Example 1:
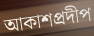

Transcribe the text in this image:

আকাশপ্রদীপ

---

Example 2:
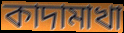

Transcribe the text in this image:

কাদামাখা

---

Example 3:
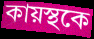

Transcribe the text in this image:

কায়স্থকে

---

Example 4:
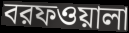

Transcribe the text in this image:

বরফওয়ালা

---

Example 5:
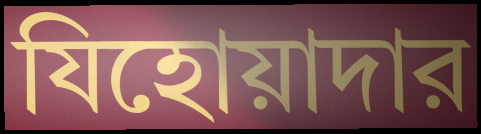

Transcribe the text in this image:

যিহোয়াদার